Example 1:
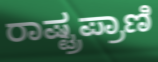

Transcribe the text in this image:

ರಾಷ್ಟ್ರಪ್ರಾಣಿ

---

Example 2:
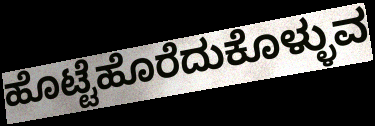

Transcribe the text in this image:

ಹೊಟ್ಟೆಹೊರೆದುಕೊಳ್ಳುವ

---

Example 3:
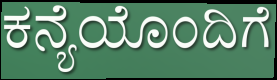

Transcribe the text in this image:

ಕನ್ಯೆಯೊಂದಿಗೆ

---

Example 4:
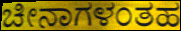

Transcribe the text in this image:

ಚೀನಾಗಳಂತಹ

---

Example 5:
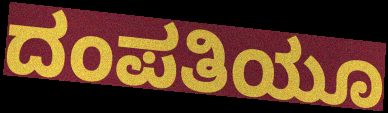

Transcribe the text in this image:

ದಂಪತಿಯೂ